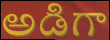
అడిగా